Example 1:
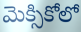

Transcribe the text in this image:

మెక్సికోలో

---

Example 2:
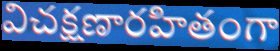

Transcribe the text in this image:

విచక్షణారహితంగా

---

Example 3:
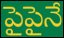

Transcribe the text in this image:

పైపైనే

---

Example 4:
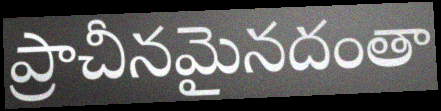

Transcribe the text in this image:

ప్రాచీనమైనదంతా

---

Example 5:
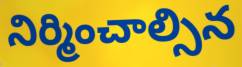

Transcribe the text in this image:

నిర్మించాల్సిన